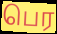
பெர